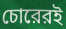
চোরেরই